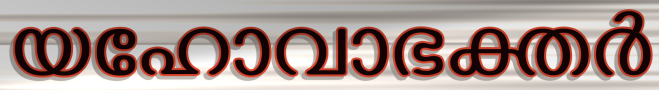
യഹോവാഭക്തർ